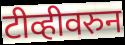
टीव्हीवरुन